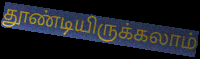
தூண்டியிருக்கலாம்